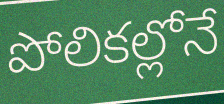
పోలికల్లోనే